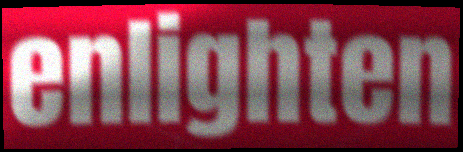
enlighten